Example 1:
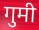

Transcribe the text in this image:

गुमी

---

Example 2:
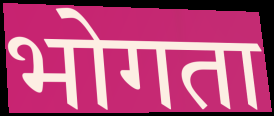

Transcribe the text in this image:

भोगता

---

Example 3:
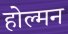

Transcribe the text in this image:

होल्मन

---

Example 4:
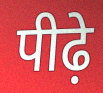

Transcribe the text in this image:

पीढ़े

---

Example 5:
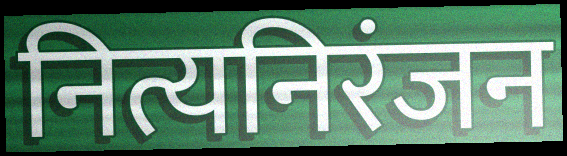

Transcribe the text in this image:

नित्यनिरंजन